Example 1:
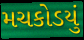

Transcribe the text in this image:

મચકોડયું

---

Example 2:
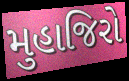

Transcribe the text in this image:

મુહાજિરો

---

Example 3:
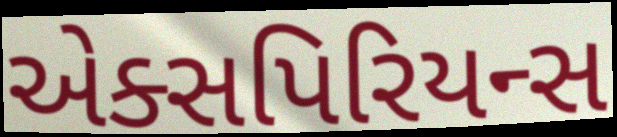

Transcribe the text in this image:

એક્સપિરિયન્સ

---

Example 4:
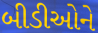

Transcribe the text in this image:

બીડીઓને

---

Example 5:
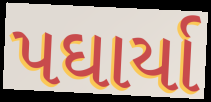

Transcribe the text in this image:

પઘાર્યા